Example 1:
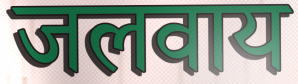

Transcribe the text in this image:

जलवाय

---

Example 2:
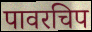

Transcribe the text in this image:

पावरचिप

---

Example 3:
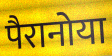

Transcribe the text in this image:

पैरानोया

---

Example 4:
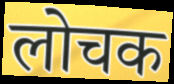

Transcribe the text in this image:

लोचक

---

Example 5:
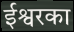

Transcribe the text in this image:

ईश्वरका